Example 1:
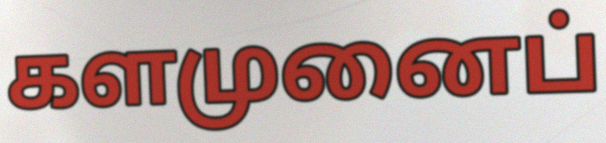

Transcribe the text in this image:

களமுனைப்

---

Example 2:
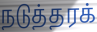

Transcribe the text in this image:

நடுத்தரக்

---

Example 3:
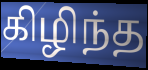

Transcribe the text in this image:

கிழிந்த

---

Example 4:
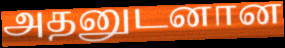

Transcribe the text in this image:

அதனுடனான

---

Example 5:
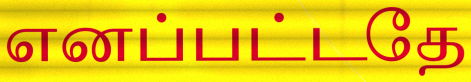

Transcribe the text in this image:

எனப்பட்டதே